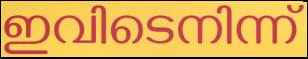
ഇവിടെനിന്ന്